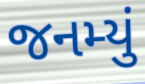
જનમ્યું